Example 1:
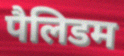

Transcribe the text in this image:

पैलिडम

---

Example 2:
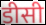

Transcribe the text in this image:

डीसी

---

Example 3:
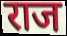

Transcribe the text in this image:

राज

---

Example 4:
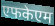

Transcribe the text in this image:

एफकेएम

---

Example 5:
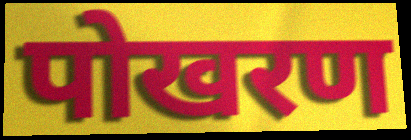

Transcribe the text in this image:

पोखरण